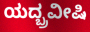
ಯದ್ಬ್ರವೀಷಿ